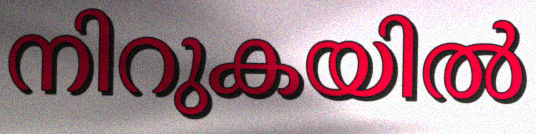
നിറുകയിൽ